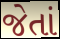
જેતાં